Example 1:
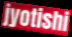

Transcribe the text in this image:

jyotishi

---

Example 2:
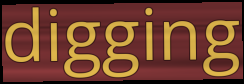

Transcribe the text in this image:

digging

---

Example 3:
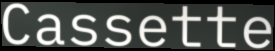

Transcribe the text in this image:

Cassette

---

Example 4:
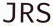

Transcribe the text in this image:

JRS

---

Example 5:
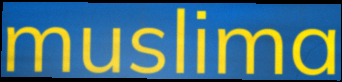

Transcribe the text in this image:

muslima